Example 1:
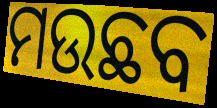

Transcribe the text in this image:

ମଉଛବ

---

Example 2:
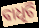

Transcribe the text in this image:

ବାଧିଚି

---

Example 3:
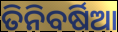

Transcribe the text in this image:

ତିନିବର୍ଷିଆ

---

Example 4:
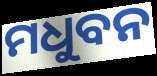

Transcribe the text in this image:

ମଧୁବନ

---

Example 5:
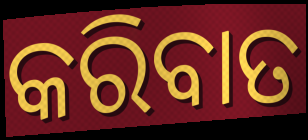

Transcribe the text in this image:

କରିବାତ